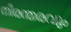
നിരന്തരവും